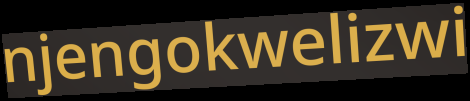
njengokwelizwi